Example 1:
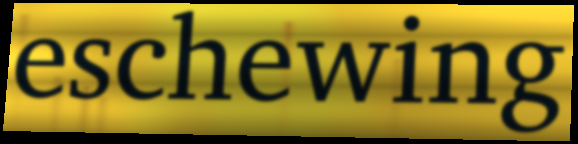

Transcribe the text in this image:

eschewing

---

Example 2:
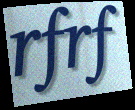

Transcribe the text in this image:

rfrf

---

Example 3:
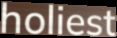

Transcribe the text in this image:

holiest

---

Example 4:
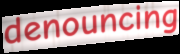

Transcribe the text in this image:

denouncing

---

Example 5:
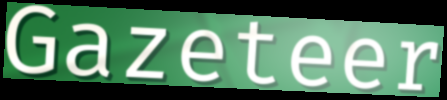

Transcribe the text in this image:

Gazeteer